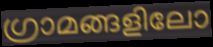
ഗ്രാമങ്ങളിലോ